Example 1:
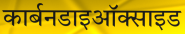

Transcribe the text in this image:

कार्बनडाइऑक्साइड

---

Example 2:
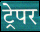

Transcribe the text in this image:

ट्रेपर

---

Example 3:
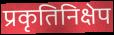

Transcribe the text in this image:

प्रकृतिनिक्षेप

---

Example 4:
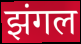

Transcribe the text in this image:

झंगल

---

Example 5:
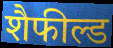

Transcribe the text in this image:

शैफील्ड